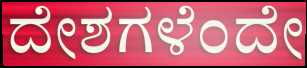
ದೇಶಗಳೆಂದೇ